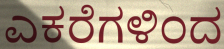
ಎಕರೆಗಳಿಂದ